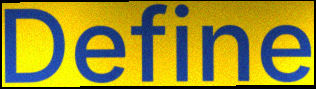
Define